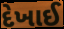
દેખાઈ